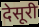
देसूरी